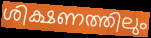
ശിക്ഷണത്തിലും